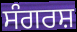
ਸੰਗਰਸ਼